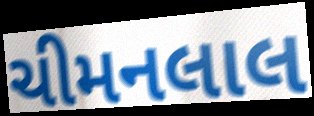
ચીમનલાલ